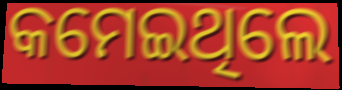
କମେଇଥିଲେ